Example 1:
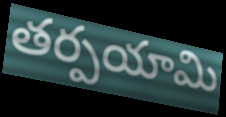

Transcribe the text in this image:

తర్పయామి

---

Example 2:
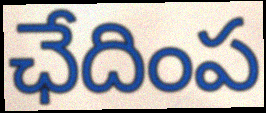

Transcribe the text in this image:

ఛేదింప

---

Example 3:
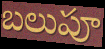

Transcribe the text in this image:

బలుపూ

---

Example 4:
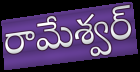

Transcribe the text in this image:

రామేశ్వర్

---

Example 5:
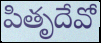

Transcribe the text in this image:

పితృదేవో